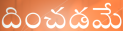
దించడమే